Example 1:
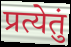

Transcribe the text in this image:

प्रत्येतुं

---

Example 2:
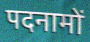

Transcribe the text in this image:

पदनामों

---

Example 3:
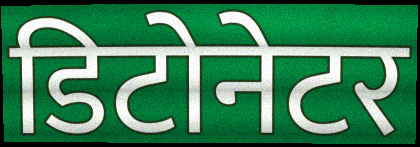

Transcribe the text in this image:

डिटोनेटर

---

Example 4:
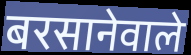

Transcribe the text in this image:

बरसानेवाले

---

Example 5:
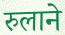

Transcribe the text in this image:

रुलाने